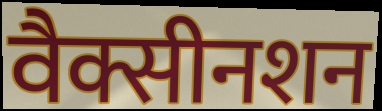
वैक्सीनशन